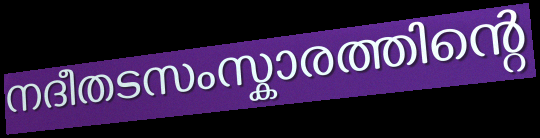
നദീതടസംസ്കാരത്തിന്റെ